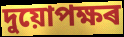
দুয়োপক্ষৰ